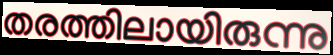
തരത്തിലായിരുന്നു